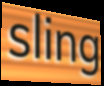
sling